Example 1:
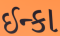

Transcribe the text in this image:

ઈન્કા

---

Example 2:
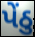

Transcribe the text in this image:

પેંઠુ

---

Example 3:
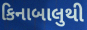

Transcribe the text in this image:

કિનાબાલુથી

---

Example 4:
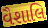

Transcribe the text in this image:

વૈશાલિ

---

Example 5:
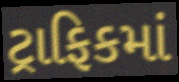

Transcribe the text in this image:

ટ્રાફિકમાં